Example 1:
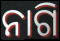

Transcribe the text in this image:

ନାଗି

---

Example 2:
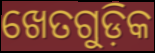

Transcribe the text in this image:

ଖେତଗୁଡ଼ିକ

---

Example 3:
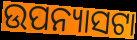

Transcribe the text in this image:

ଉପନ୍ୟାସଟା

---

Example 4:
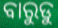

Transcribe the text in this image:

ବାରୁଡୁ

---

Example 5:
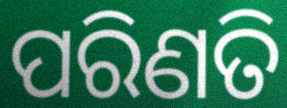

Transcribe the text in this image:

ପରିଣତି